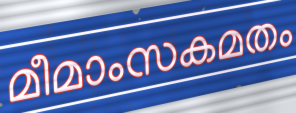
മീമാംസകമതം